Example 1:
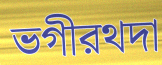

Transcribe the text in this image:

ভগীরথদা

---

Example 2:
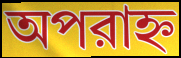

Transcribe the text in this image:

অপরাহ্ন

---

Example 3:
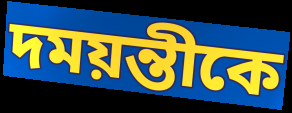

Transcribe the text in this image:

দময়ন্তীকে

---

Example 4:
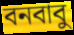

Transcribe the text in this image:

বনবাবু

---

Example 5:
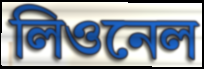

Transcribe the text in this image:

লিওনেল